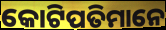
କୋଟିପତିମାନେ